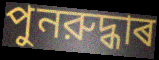
পুনৰুদ্ধাৰ